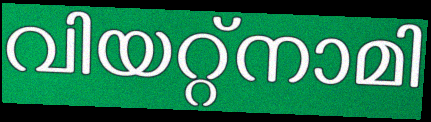
വിയറ്റ്നാമി